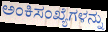
ಅಂಕಿಸಂಖ್ಯೆಗಳನ್ನು